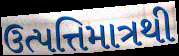
ઉત્પત્તિમાત્રથી